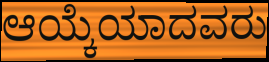
ಆಯ್ಕೆಯಾದವರು